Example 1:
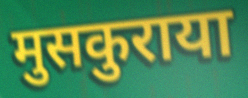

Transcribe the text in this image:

मुसकुराया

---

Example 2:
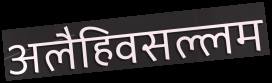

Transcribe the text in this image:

अलैहिवसल्लम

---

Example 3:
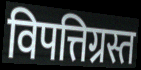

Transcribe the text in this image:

विपत्तिग्रस्त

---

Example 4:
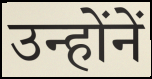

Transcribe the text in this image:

उन्‍होंनें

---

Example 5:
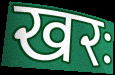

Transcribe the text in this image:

खरः